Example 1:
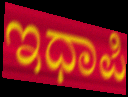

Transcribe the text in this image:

ಇಧಾಪಿ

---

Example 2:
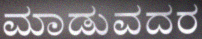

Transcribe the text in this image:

ಮಾಡುವದರ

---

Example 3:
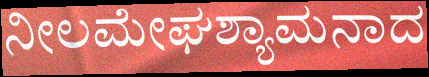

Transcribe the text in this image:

ನೀಲಮೇಘಶ್ಯಾಮನಾದ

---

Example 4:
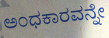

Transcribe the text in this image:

ಅಂಧಕಾರವನ್ನೇ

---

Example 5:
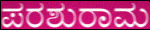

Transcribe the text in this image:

ಪರಶುರಾಮ